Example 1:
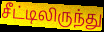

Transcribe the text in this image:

சீட்டிலிருந்து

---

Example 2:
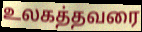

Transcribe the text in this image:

உலகத்தவரை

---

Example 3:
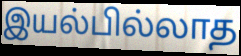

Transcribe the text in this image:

இயல்பில்லாத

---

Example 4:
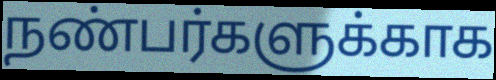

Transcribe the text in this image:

நண்பர்களுக்காக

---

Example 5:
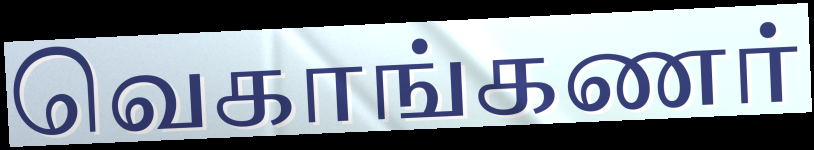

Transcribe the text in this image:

வெகாங்கணர்